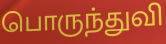
பொருந்துவி